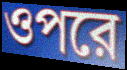
ওপরে